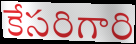
కేసరిగారి